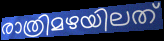
രാത്രിമഴയിലത്